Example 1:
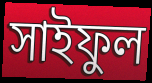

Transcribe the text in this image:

সাইফুল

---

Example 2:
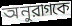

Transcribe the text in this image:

অনুরাগকে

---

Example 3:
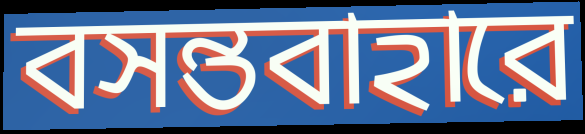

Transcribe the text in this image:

বসন্তবাহারে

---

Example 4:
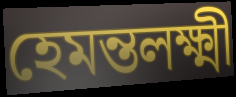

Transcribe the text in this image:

হেমন্তলক্ষ্মী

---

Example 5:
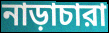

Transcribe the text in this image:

নাড়াচারা